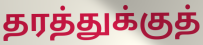
தரத்துக்குத்